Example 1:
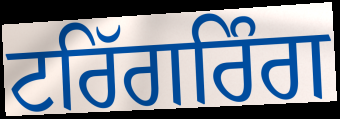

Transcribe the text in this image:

ਟਰਿੱਗਰਿੰਗ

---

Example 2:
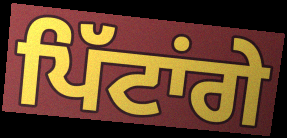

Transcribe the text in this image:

ਪਿੱਟਾਂਗੇ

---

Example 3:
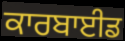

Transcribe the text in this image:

ਕਾਰਬਾਈਡ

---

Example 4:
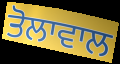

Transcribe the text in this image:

ਤੋਲਾਵਾਲ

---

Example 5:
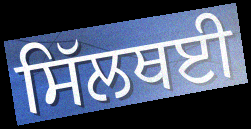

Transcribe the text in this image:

ਸਿੱਲਥਈ